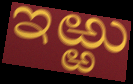
ఇఱ్ఱు